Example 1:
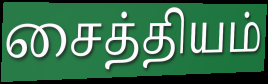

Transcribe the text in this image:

சைத்தியம்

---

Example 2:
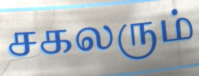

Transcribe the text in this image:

சகலரும்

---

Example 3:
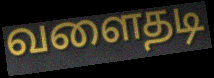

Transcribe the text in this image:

வளைதடி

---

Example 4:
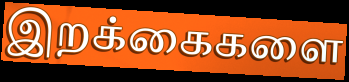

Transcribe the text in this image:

இறக்கைகளை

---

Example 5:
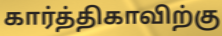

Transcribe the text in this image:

கார்த்திகாவிற்கு